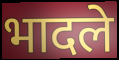
भादले